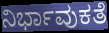
ನಿರ್ಭಾವುಕತೆ